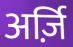
अर्ज़ि